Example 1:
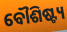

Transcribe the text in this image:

ବୌଶିଷ୍ଟ୍ୟ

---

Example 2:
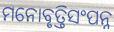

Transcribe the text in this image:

ମନୋବୃତ୍ତିସଂପନ୍ନ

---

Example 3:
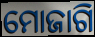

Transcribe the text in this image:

ମୋଜାଗି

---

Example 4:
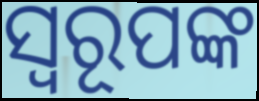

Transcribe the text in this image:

ସ୍ୱରୂପଙ୍କ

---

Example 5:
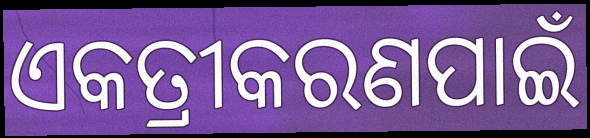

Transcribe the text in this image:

ଏକତ୍ରୀକରଣପାଇଁ